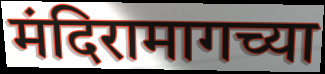
मंदिरामागच्या